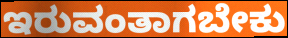
ಇರುವಂತಾಗಬೇಕು